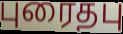
புரைதபு